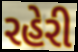
રહેરી